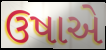
ઉષાએ